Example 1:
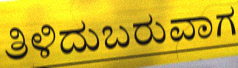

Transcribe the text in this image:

ತಿಳಿದುಬರುವಾಗ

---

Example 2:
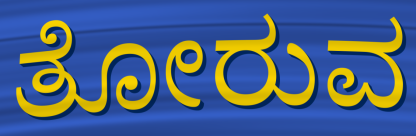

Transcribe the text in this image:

ತೋರುವ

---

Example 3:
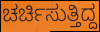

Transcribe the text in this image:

ಚರ್ಚಿಸುತ್ತಿದ್ದ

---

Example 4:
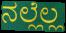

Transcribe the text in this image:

ನಲ್ಲೆಲ್ಲ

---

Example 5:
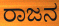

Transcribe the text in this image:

ರಾಜನ